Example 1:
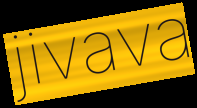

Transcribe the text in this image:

jivava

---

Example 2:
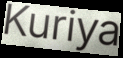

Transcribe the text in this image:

Kuriya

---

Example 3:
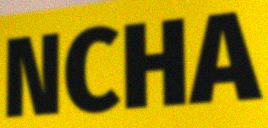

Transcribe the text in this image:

NCHA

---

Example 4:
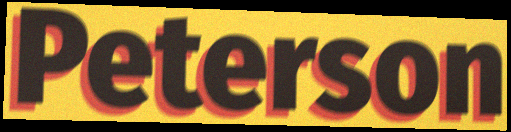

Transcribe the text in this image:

Peterson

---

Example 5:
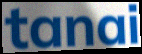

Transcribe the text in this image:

tanai